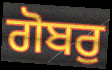
ਗੋਬਰੁ